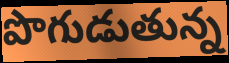
పొగుడుతున్న